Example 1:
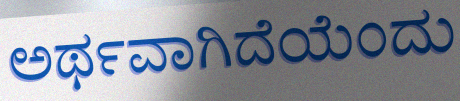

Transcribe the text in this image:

ಅರ್ಥವಾಗಿದೆಯೆಂದು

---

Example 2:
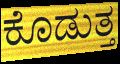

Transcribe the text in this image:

ಕೊಡುತ್ತ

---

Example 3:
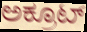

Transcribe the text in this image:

ಅಕ್ರೂಟ್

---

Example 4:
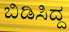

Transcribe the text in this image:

ಬಿಡಿಸಿದ್ದ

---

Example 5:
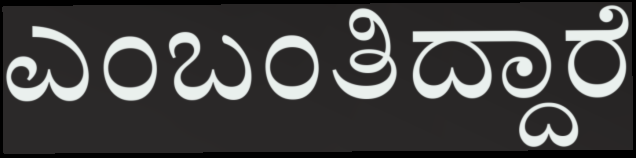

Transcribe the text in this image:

ಎಂಬಂತಿದ್ದಾರೆ